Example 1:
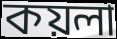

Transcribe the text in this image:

কয়লা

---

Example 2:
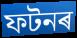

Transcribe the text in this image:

ফটনৰ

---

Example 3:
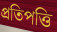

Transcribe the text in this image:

প্ৰতিপত্তি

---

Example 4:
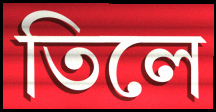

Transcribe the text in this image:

তিলে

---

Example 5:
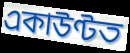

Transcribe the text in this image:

একাউণ্টত